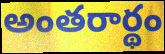
అంతరార్థం